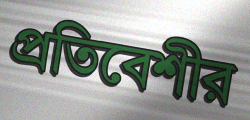
প্রতিবেশীর